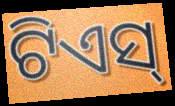
ଟିଏସ୍